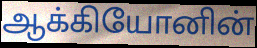
ஆக்கியோனின்